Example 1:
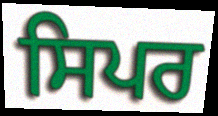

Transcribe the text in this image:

ਸਿਪਰ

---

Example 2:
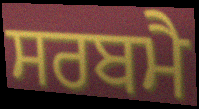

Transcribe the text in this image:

ਸਰਬਮੈ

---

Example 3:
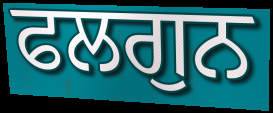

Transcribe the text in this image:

ਫਲਗੁਨ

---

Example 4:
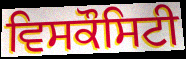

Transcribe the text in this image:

ਵਿਸਕੌਸਿਟੀ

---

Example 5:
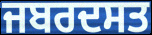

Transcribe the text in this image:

ਜਬਰਦਸਤ